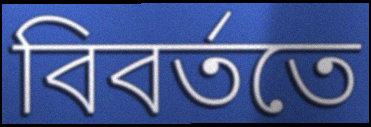
বিবর্ততে